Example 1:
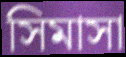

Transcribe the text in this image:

সিমাসা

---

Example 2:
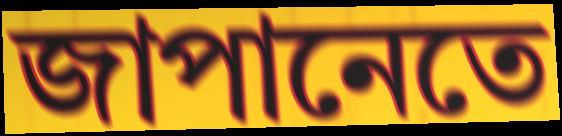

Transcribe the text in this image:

জাপানেতে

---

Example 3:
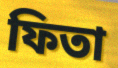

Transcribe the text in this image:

ফিতা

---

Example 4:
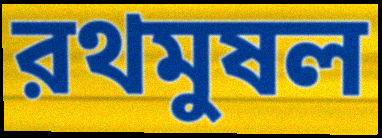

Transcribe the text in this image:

রথমুষল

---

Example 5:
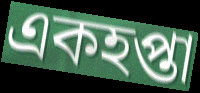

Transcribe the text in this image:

একহপ্তা